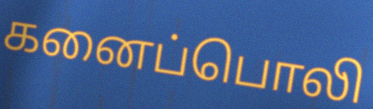
கனைப்பொலி